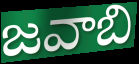
జవాబి